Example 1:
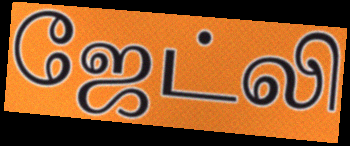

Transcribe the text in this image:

ஜேட்லி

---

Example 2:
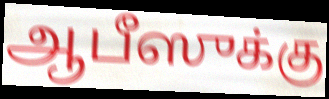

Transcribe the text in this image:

ஆபீஸுக்கு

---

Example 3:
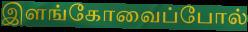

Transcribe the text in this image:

இளங்கோவைப்போல்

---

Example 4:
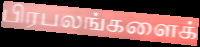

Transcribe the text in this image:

பிரபலங்களைக்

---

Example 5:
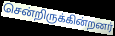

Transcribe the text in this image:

சென்றிருக்கின்றனர்